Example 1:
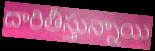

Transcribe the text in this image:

దారితీస్తున్నాయి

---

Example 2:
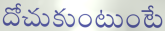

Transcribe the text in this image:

దోచుకుంటుంటే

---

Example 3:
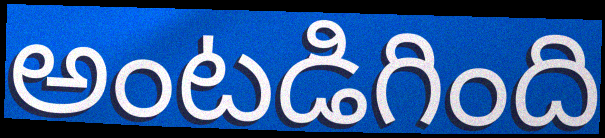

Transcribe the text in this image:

అంటడిగింది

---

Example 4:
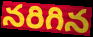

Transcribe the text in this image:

నరిగిన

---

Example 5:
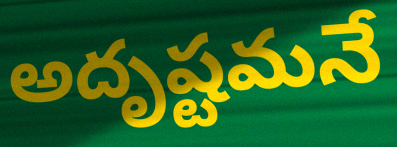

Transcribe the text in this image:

అదృష్టమనే